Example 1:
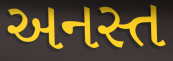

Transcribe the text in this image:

અનસ્ત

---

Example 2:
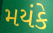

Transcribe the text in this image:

મયંકે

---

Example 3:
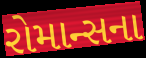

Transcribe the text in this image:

રોમાન્સના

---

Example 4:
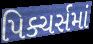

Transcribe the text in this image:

પિક્ચર્સમાં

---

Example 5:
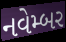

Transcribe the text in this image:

નવેમ્બર